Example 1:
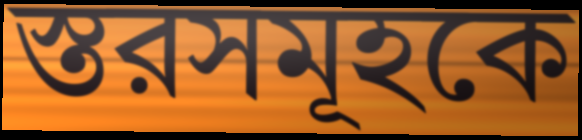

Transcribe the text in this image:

স্তরসমূহকে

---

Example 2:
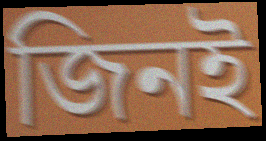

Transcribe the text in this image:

জিনই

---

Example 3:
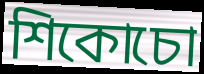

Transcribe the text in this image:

শিকোচো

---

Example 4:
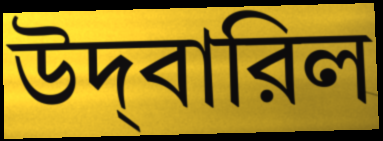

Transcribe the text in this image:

উদ্‌বারিল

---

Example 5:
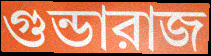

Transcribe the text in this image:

গুন্ডারাজ